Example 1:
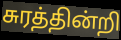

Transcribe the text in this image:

சுரத்தின்றி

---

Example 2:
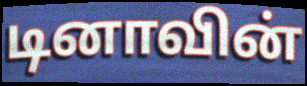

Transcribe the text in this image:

டினாவின்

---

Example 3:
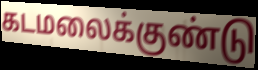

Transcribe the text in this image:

கடமலைக்குண்டு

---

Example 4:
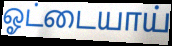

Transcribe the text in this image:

ஓட்டையாய்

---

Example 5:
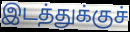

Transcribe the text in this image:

இடத்துக்குச்